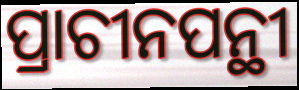
ପ୍ରାଚୀନପନ୍ଥୀ